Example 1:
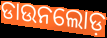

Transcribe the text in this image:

ଡାଉନଲୋଡ଼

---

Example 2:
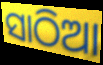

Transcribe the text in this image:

ସାଠିଆ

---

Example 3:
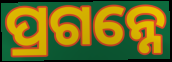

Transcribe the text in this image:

ପ୍ରଗନ୍ନେ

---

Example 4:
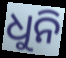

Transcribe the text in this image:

ଧୁନି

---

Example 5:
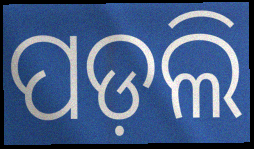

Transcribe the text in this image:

ପଡ଼ଲି